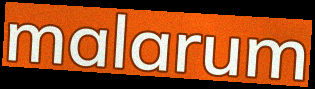
malarum